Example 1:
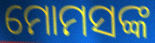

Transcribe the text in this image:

ମୋମସଙ୍କ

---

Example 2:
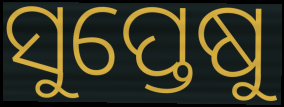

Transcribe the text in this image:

ସୁପ୍ତେଷୁ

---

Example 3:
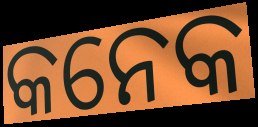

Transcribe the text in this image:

କନେକ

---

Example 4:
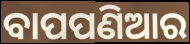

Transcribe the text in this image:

ବାପପଣିଆର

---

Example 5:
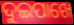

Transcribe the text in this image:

ଦୁଇପାଖେ